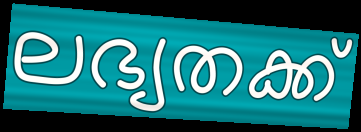
ലഭ്യതക്ക്